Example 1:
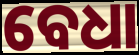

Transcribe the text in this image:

ବେଧା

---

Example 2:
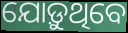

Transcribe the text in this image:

ଯୋଡ଼ୁଥିବେ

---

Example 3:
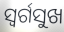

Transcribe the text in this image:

ସ୍ୱର୍ଗସୁଖ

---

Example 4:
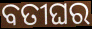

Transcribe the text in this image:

ବତୀଘର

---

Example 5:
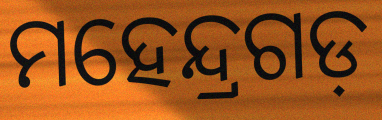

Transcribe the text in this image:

ମହେନ୍ଦ୍ରଗଡ଼